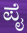
ಪೈ